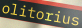
olitorius